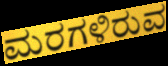
ಮರಗಳಿರುವ